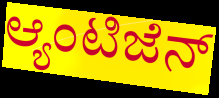
ಆ್ಯಂಟಿಜೆನ್